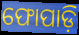
ଫୋପାଡ଼ି